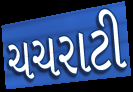
ચચરાટી